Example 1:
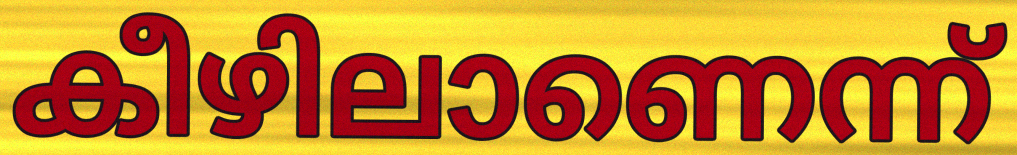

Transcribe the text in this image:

കീഴിലാണെന്ന്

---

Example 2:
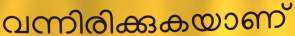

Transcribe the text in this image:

വന്നിരിക്കുകയാണ്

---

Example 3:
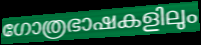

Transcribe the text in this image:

ഗോത്രഭാഷകളിലും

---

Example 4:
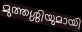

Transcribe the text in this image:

മുത്തശ്ശിയുമായി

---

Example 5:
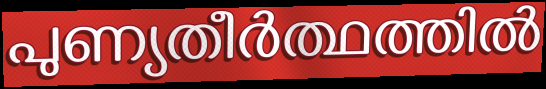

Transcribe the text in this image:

പുണ്യതീർത്ഥത്തിൽ